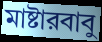
মাষ্টারবাবু